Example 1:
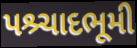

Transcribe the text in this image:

પશ્ર્ચાદભૂમી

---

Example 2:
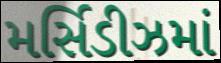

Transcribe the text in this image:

મર્સિડીઝમાં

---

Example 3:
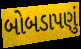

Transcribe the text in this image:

બોબડાપણું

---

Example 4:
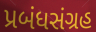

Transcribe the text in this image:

પ્રબંધસંગ્રહ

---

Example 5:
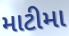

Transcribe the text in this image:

માટીમા